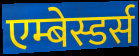
एम्बेस्डर्स